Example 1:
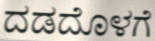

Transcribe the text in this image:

ದಡದೊಳಗೆ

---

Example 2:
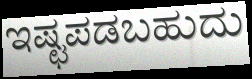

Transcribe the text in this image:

ಇಷ್ಟಪಡಬಹುದು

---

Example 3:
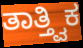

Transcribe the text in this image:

ತಾತ್ತ್ವಿಕ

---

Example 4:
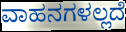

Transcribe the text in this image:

ವಾಹನಗಳಲ್ಲದೆ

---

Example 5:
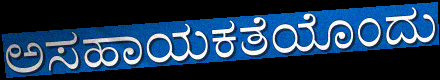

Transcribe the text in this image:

ಅಸಹಾಯಕತೆಯೊಂದು